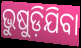
ଭୁଷୁଡ଼ିଯିବା